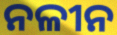
ନଳୀନ